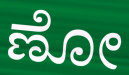
ಣೋ